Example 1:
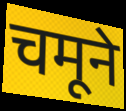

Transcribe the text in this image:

चमूने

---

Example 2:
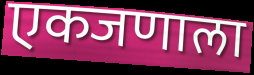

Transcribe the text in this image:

एकजणाला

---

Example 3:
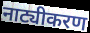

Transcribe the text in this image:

नाट्यीकरण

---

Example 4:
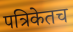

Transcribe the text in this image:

पत्रिकेतच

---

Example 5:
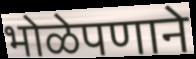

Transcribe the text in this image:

भोळेपणाने